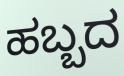
ಹಬ್ಬದ